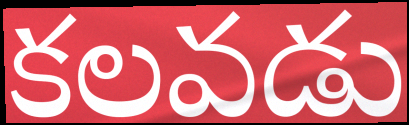
కలవడు